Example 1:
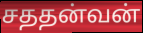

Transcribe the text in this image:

சததன்வன்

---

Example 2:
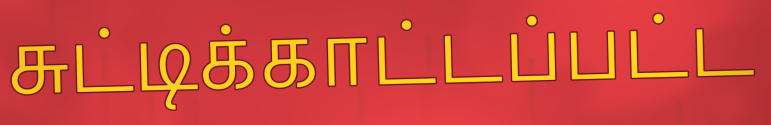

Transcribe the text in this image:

சுட்டிக்காட்டப்பட்ட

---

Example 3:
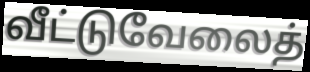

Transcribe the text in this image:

வீட்டுவேலைத்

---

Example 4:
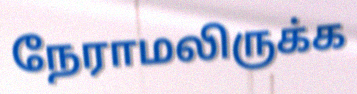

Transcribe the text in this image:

நேராமலிருக்க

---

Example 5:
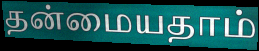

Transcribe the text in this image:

தன்மையதாம்